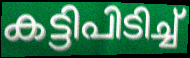
കട്ടിപിടിച്ച്